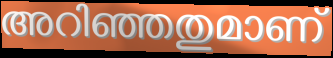
അറിഞ്ഞതുമാണ്